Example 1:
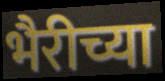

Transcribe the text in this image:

भैरीच्या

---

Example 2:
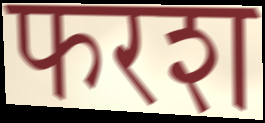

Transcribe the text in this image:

फरश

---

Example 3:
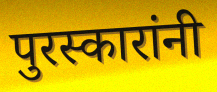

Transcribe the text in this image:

पुरस्कारांनी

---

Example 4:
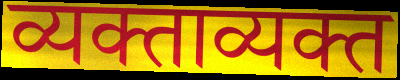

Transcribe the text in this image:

व्यक्ताव्यक्त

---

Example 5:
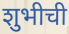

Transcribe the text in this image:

शुभीची